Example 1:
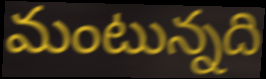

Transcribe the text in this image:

మంటున్నది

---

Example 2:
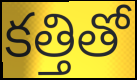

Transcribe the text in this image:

కత్తితో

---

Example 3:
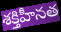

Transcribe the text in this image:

శక్తిహీనత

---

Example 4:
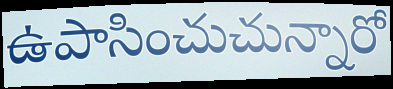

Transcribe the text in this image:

ఉపాసించుచున్నారో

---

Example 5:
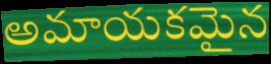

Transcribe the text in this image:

అమాయకమైన